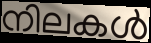
നിലകൾ